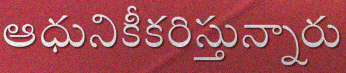
ఆధునికీకరిస్తున్నారు